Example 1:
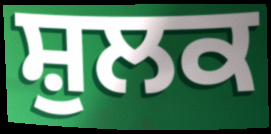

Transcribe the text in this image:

ਸ਼ੁਲਕ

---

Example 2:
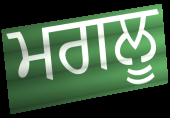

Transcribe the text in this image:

ਮਗਲੂ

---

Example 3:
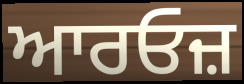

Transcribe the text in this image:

ਆਰਓਜ਼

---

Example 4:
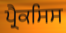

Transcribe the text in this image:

ਪ੍ਰੈਕਸਿਸ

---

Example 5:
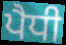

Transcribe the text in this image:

ਪੈਧੀ